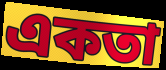
একতা